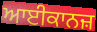
ਆਈਕਾਨਜ਼